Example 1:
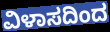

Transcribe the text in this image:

ವಿಳಾಸದಿಂದ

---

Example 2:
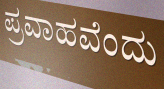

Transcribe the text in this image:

ಪ್ರವಾಹವೆಂದು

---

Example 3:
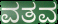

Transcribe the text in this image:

ವತವ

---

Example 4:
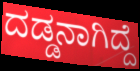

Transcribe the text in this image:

ದಡ್ಡನಾಗಿದ್ದೆ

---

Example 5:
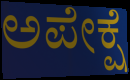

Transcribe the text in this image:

ಅಪೇಕ್ಷೆ